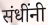
संधींनी